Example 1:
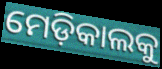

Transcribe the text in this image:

ମେଡ଼ିକାଲକୁ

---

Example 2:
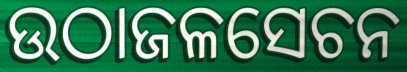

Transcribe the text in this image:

ଉଠାଜଳସେଚନ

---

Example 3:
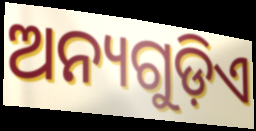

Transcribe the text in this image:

ଅନ୍ୟଗୁଡ଼ିଏ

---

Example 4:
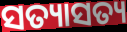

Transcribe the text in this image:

ସତ୍ୟାସତ୍ୟ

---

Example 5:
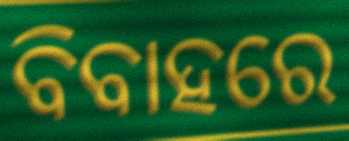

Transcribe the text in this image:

ବିବାହରେ